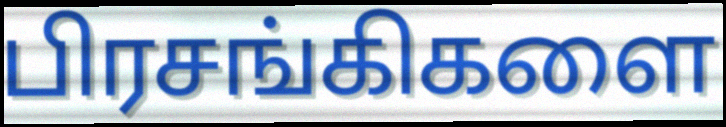
பிரசங்கிகளை